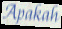
Apakah